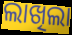
ଲାଖିଲା